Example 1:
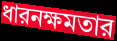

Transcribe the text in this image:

ধারনক্ষমতার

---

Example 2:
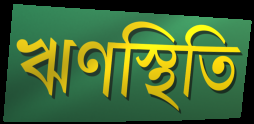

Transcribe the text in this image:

ঋণস্থিতি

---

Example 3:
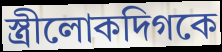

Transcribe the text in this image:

স্ত্রীলোকদিগকে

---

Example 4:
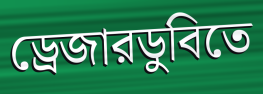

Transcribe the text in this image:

ড্রেজারডুবিতে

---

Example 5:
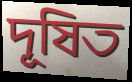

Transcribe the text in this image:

দূষিত